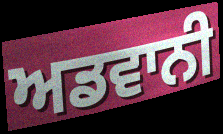
ਅਡਵਾਨੀ